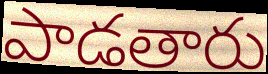
పాడతారు